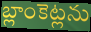
బ్లాంకెట్లను